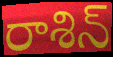
రాశిన్